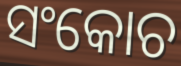
ସଂକୋଚ